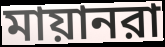
মায়ানরা